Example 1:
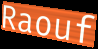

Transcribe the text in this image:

Raouf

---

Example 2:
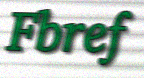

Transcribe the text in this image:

Fbref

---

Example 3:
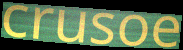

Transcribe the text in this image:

crusoe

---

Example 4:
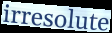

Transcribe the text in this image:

irresolute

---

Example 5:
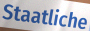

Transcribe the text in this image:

Staatliche